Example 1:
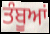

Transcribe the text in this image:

ਤੰਬੂਆਂ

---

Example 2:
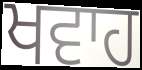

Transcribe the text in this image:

ਖਵਾਹ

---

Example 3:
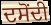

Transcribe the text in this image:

ਦਸੋਂਦੀ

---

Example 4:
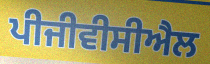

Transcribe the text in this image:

ਪੀਜੀਵੀਸੀਐਲ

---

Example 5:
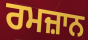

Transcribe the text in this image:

ਰਮਜ਼ਾਨ